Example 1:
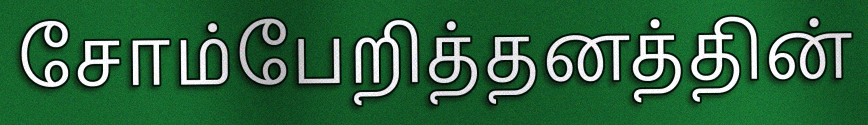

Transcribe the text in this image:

சோம்பேறித்தனத்தின்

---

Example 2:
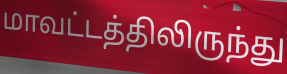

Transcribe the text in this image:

மாவட்டத்திலிருந்து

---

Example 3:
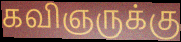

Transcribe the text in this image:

கவிஞருக்கு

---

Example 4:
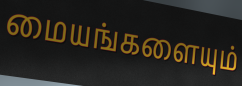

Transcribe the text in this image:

மையங்களையும்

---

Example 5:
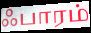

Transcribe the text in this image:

ஃபாரம்